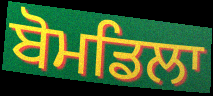
ਬੋਮਡਿਲਾ